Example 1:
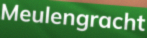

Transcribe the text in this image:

Meulengracht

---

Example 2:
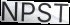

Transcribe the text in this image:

NPST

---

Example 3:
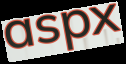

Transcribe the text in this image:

aspx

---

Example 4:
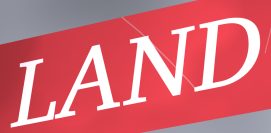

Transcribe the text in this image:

LAND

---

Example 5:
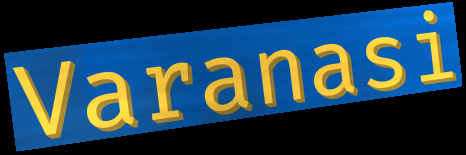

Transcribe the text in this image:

Varanasi